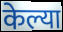
केल्या